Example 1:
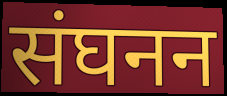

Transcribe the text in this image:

संघनन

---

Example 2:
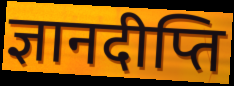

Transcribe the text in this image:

ज्ञानदीप्ति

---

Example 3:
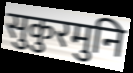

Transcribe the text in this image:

सुकुरमुनि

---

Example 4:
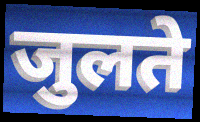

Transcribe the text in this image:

जुलते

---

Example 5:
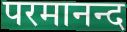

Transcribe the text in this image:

परमानन्‍द